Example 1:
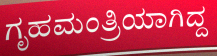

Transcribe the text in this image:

ಗೃಹಮಂತ್ರಿಯಾಗಿದ್ದ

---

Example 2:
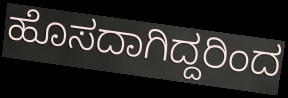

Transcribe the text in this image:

ಹೊಸದಾಗಿದ್ದರಿಂದ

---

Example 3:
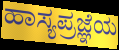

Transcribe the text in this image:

ಹಾಸ್ಯಪ್ರಜ್ಞೆಯ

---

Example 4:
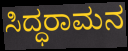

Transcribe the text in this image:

ಸಿದ್ಧರಾಮನ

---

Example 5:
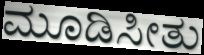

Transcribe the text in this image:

ಮೂಡಿಸೀತು